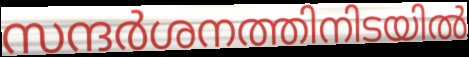
സന്ദർശനത്തിനിടയിൽ